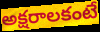
అక్షరాలకంటే